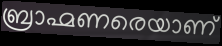
ബ്രാഹ്മണരെയാണ്